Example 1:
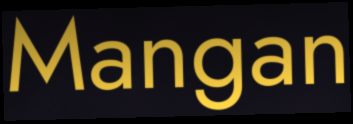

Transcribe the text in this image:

Mangan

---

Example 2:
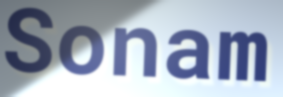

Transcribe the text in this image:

Sonam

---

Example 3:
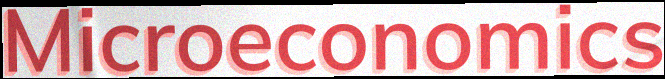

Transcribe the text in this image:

Microeconomics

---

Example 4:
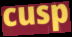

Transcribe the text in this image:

cusp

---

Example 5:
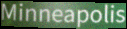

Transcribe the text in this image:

Minneapolis